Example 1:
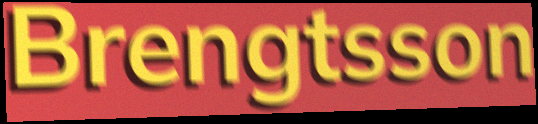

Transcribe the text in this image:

Brengtsson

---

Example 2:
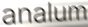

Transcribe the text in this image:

analum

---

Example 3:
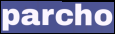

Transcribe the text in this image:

parcho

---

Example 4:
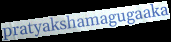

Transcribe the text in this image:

pratyakshamagugaaka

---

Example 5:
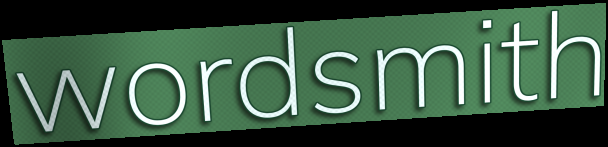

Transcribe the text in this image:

wordsmith